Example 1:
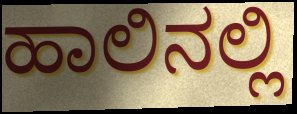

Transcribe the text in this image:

ಹಾಲಿನಲ್ಲಿ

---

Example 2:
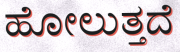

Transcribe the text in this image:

ಹೋಲುತ್ತದೆ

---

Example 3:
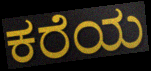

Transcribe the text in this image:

ಕರೆಯ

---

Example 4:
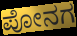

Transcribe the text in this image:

ಪೋನಗ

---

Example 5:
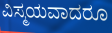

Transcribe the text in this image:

ವಿಸ್ಮಯವಾದರೂ